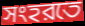
সংহরতে